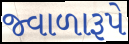
જ્વાળારૂપે